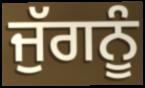
ਜੁੱਗਨੂੰ